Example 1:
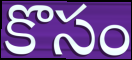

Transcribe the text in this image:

కొసం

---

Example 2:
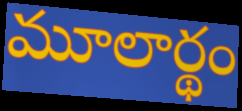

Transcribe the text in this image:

మూలార్థం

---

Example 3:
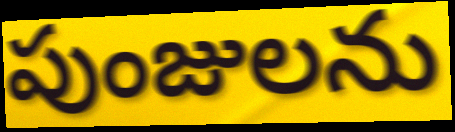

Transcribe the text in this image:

పుంజులను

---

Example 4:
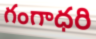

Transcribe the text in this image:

గంగాధరి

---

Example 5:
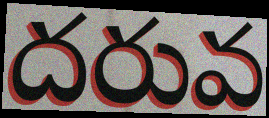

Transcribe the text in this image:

దరువ